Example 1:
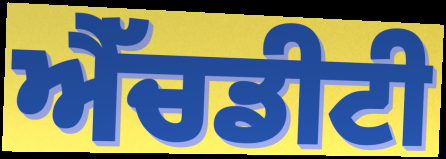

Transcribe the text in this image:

ਐੱਚਡੀਟੀ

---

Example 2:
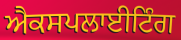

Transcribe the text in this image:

ਐਕਸਪਲਾਈਟਿੰਗ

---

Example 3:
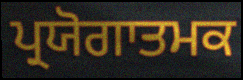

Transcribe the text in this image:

ਪ੍ਰਯੋਗਾਤਮਕ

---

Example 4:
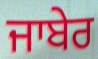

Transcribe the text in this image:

ਜਾਬੇਰ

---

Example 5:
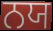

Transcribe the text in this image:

ਨਯ